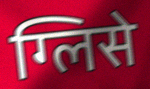
ग्लिसे